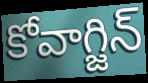
కోవాగ్జిన్